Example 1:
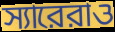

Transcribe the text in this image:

স্যারেরাও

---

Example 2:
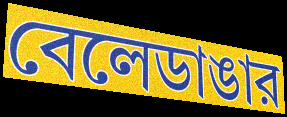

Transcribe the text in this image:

বেলেডাঙার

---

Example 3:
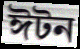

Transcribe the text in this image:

ঈটন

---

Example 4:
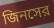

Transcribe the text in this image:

জিনসের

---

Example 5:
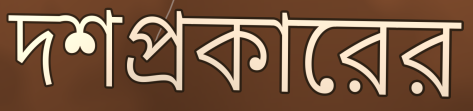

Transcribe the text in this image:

দশপ্রকারের